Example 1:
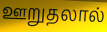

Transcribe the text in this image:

ஊறுதலால்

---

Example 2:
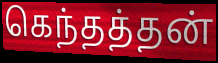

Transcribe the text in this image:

கெந்தத்தன்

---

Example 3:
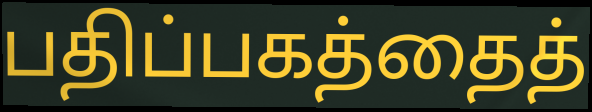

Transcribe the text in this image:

பதிப்பகத்தைத்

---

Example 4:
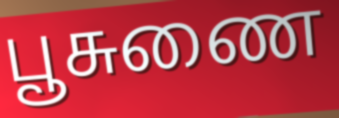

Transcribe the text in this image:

பூசுணை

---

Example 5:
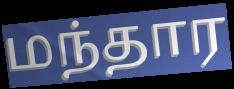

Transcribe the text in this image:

மந்தார